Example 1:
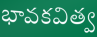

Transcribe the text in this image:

భావకవిత్వ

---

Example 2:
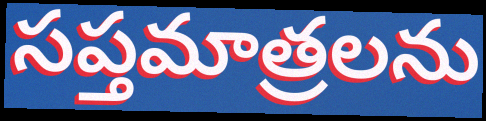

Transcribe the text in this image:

సప్తమాత్రలను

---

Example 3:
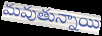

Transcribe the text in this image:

మవుతున్నాయి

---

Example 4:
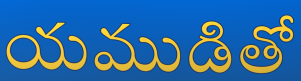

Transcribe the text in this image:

యముడితో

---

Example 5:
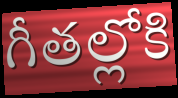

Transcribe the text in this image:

గీతల్లోకి